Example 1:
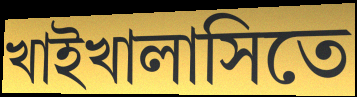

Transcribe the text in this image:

খাইখালাসিতে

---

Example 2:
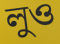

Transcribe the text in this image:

লুও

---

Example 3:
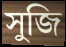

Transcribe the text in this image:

সুজি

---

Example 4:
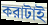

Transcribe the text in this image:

করাটাই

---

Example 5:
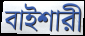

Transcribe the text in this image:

বাইশারী